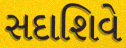
સદાશિવે